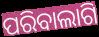
ପରିବାଲାଗି